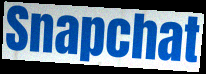
Snapchat